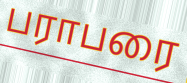
பராபரை